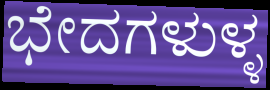
ಭೇದಗಳುಳ್ಳ